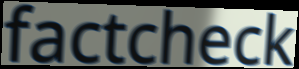
factcheck